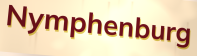
Nymphenburg